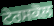
ਟੇਰਸਕੋਲ